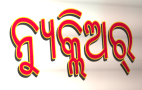
ନ୍ୟୁକ୍ଲିଅର୍